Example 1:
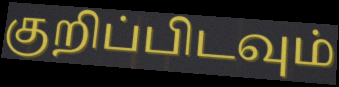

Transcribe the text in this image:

குறிப்பிடவும்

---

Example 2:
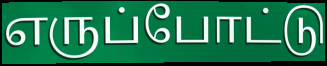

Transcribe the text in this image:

எருப்போட்டு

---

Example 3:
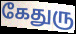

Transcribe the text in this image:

கேதுரு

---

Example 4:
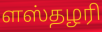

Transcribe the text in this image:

ளஸ்தழரி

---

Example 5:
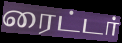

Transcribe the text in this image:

ரைட்டர்